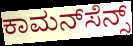
ಕಾಮನ್‌ಸೆನ್ಸ್